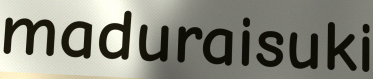
maduraisuki